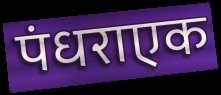
पंधराएक